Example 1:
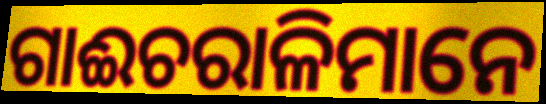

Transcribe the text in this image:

ଗାଈଚରାଳିମାନେ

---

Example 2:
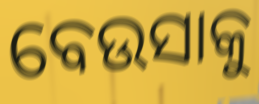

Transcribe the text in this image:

ବେଉସାକୁ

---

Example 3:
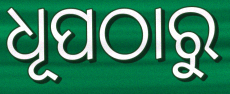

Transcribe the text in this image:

ଧୂପଠାରୁ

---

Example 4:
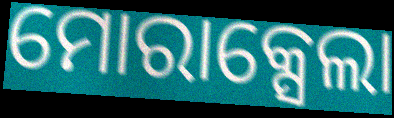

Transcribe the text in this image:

ମୋରାକ୍ସେଲା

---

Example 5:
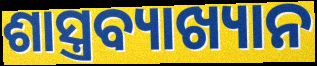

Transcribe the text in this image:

ଶାସ୍ତ୍ରବ୍ୟାଖ୍ୟାନ